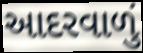
આદરવાળું